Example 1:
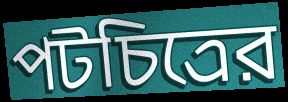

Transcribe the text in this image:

পটচিত্রের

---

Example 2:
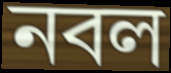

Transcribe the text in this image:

নবল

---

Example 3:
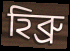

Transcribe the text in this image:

হিব্রু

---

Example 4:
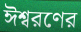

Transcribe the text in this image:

ঈশ্বরণের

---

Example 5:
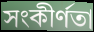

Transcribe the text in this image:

সংকীর্ণতা